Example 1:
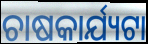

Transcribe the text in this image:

ଚାଷକାର୍ଯ୍ୟଟା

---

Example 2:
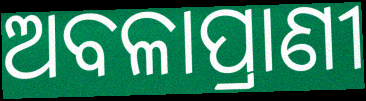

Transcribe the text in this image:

ଅବଳାପ୍ରାଣୀ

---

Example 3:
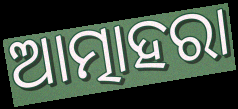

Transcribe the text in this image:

ଆତ୍ମାହରା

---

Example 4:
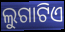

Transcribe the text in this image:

ଲୁଗାଟିଏ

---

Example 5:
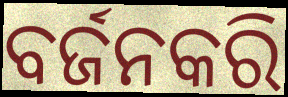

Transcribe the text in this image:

ବର୍ଜନକରି